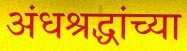
अंधश्रद्धांच्या